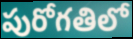
పురోగతిలో